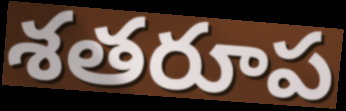
శతరూప